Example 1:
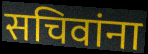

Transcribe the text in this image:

सचिवांना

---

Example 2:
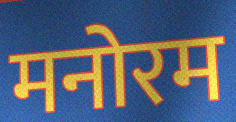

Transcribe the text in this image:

मनोरम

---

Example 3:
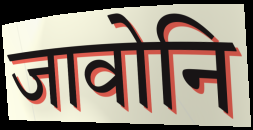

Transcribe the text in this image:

जावोनि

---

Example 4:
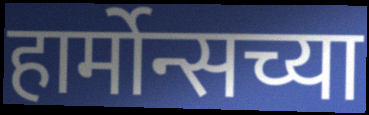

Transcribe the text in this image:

हार्मोन्सच्या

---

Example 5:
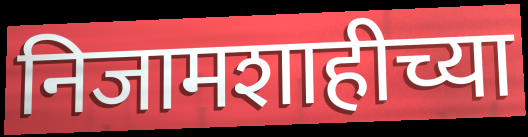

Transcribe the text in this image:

निजामशाहीच्या